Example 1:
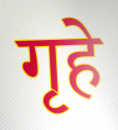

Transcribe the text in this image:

गृहे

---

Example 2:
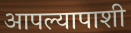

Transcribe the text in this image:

आपल्यापाशी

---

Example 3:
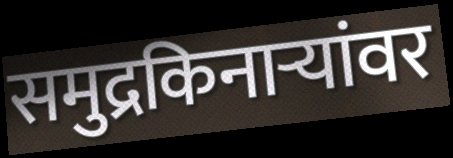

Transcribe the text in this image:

समुद्रकिनाऱ्यांवर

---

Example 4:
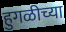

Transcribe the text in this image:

हुगळीच्या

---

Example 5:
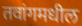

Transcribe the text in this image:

तवांगमधील